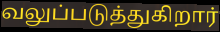
வலுப்படுத்துகிறார்